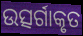
ଉତ୍ସର୍ଗାକୃତ